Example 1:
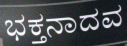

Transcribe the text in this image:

ಭಕ್ತನಾದವ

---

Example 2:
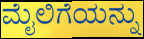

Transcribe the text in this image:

ಮೈಲಿಗೆಯನ್ನು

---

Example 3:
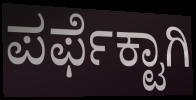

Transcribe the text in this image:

ಪರ್ಫೆಕ್ಟಾಗಿ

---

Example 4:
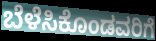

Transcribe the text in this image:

ಬೆಳೆಸಿಕೊಂಡವರಿಗೆ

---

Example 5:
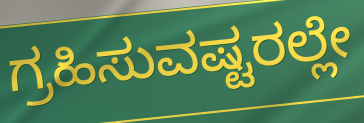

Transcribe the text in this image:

ಗ್ರಹಿಸುವಷ್ಟರಲ್ಲೇ